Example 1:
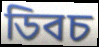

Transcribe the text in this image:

ডিবচ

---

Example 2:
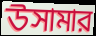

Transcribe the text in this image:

উসামার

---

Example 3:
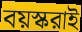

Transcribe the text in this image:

বয়স্করাই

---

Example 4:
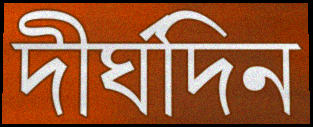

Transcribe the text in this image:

দীর্ঘদিন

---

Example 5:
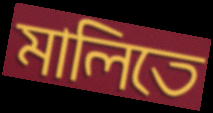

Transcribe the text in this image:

মালিতে